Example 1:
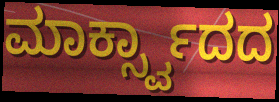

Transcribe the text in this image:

ಮಾರ್ಕ್ಸ್ವಾದದ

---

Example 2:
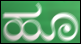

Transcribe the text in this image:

ಹೂ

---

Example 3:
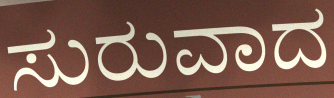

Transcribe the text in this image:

ಸುರುವಾದ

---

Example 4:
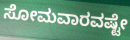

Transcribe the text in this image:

ಸೋಮವಾರವಷ್ಟೇ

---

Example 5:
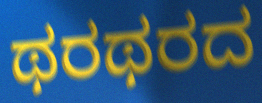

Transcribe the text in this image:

ಥರಥರದ